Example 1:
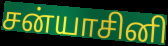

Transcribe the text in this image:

சன்யாசினி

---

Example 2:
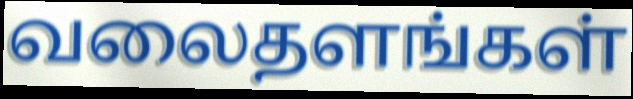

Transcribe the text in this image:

வலைதளங்கள்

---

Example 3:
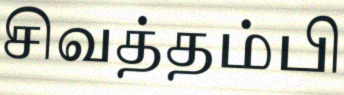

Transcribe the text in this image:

சிவத்தம்பி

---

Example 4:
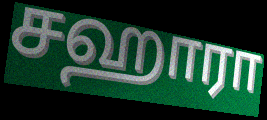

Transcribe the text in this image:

சஹாரா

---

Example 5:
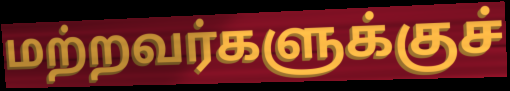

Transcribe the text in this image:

மற்றவர்களுக்குச்